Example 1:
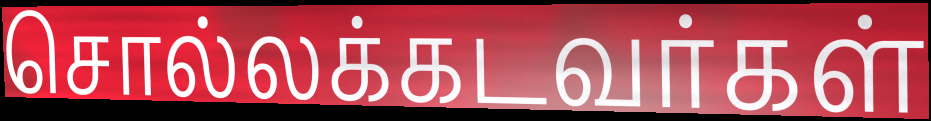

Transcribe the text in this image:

சொல்லக்கடவர்கள்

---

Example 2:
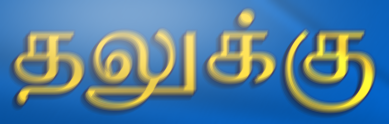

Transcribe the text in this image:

தலுக்கு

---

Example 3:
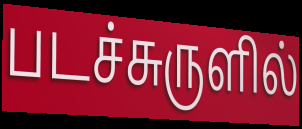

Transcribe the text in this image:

படச்சுருளில்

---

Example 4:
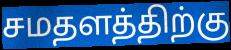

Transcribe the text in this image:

சமதளத்திற்கு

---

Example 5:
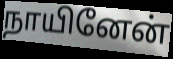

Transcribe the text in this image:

நாயினேன்